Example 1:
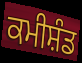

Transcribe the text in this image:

ਕਮੀਸ਼ੰਡ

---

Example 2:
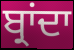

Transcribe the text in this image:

ਬ੍ਰਾਂਦਾ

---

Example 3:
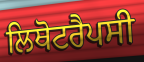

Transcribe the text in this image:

ਲਿਥੋਟਰੈਪਸੀ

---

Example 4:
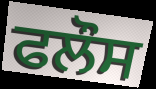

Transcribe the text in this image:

ਫਲੌਸ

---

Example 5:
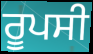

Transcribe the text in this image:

ਰੂਪਸੀ